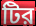
টির